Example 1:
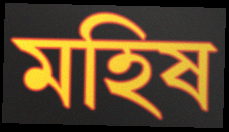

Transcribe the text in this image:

মহিষ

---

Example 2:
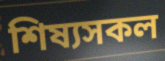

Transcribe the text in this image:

শিষ্যসকল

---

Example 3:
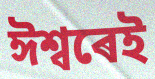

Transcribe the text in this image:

ঈশ্বৰেই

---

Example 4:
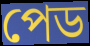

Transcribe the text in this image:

পেড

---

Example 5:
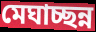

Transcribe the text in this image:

মেঘাচ্ছন্ন